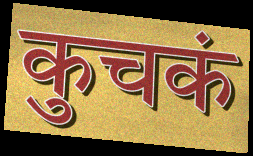
कुचकं